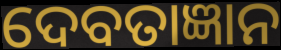
ଦେବତାଜ୍ଞାନ